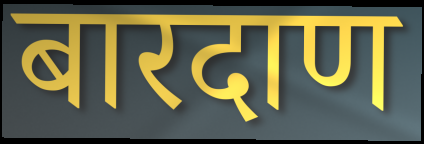
बारदाण